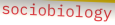
sociobiology